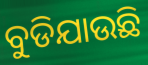
ବୁଡିଯାଉଛି